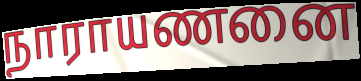
நாராயணனை